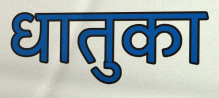
धातुका